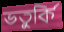
ভতুর্কি